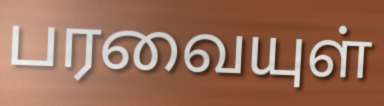
பரவையுள்